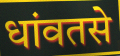
धांवतसे